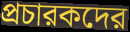
প্রচারকদের